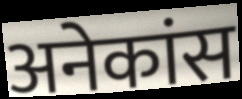
अनेकांस